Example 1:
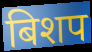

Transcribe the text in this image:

बिशप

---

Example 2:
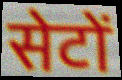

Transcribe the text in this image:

सेटों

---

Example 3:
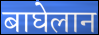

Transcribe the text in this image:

बाघेलान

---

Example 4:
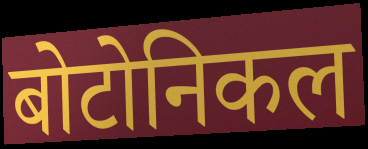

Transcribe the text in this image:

बोटोनिकल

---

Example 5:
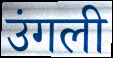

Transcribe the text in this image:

उंगली